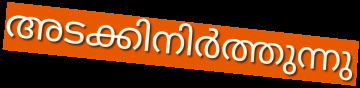
അടക്കിനിർത്തുന്നു